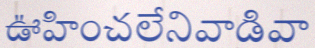
ఊహించలేనివాడివా